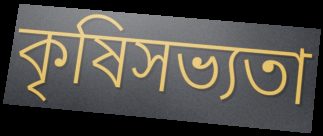
কৃষিসভ্যতা